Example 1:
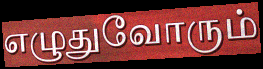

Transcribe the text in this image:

எழுதுவோரும்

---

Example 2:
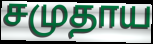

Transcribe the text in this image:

சமுதாய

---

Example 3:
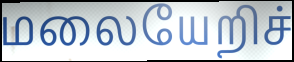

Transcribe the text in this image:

மலையேறிச்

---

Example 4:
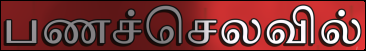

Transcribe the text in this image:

பணச்செலவில்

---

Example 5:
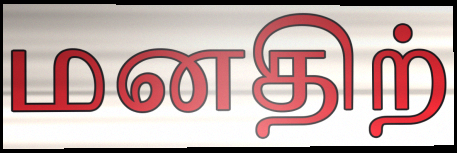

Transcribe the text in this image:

மனதிற்